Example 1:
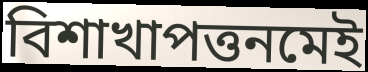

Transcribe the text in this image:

বিশাখাপত্তনমেই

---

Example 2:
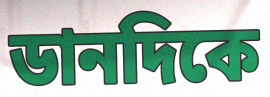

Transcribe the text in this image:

ডানদিকে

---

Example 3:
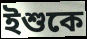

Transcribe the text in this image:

ইশুকে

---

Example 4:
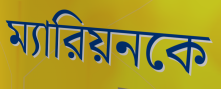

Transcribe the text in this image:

ম্যারিয়নকে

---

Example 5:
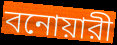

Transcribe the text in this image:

বনোয়ারী